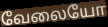
வேலையோ